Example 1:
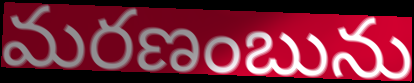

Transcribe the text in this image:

మరణంబును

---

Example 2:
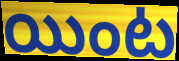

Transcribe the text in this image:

యింట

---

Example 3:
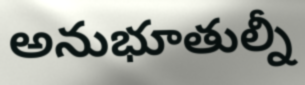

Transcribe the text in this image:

అనుభూతుల్నీ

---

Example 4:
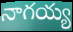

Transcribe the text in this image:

నాగయ్య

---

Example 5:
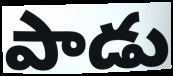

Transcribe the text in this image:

పాడు